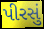
પીરસું